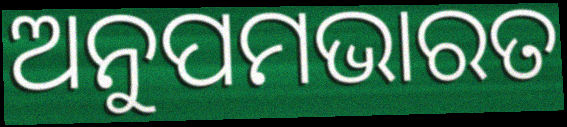
ଅନୁପମଭାରତ